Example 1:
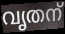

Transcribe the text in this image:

വൃതന്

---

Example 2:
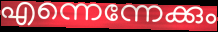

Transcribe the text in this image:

എന്നെന്നേക്കും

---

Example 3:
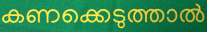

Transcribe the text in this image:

കണക്കെടുത്താൽ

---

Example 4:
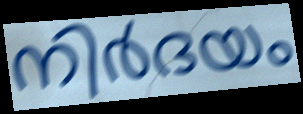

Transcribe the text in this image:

നിർദയം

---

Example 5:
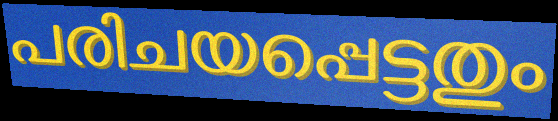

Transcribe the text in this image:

പരിചയപ്പെട്ടതും